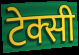
टेक्‍सी